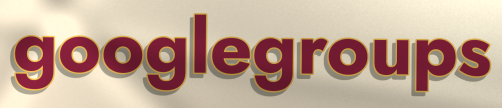
googlegroups